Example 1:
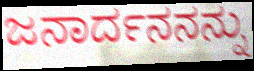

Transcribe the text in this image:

ಜನಾರ್ದನನನ್ನು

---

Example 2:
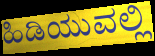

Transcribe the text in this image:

ಹಿಡಿಯುವಲ್ಲಿ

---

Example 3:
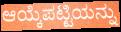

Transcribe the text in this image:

ಆಯ್ಕೆಪಟ್ಟಿಯನ್ನು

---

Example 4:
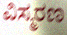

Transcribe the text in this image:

ವಿಸ್ಮರಣ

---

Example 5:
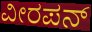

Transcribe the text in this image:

ವೀರಪನ್